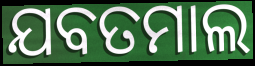
ଯବତମାଲ